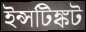
ইন্সটিঙ্কট